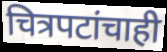
चित्रपटांचाही